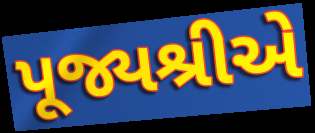
પૂજ્યશ્રીએ